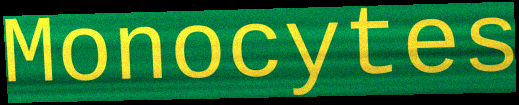
Monocytes